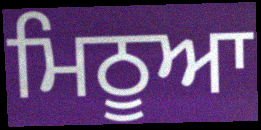
ਮਿਠੂਆ